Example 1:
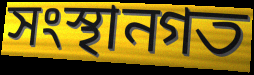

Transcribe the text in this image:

সংস্থানগত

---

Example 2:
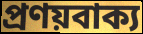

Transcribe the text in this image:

প্রণয়বাক্য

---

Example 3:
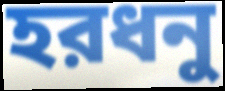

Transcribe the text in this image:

হরধনু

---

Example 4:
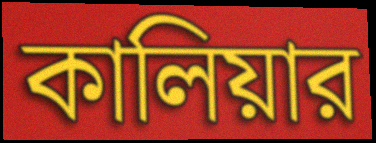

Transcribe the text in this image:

কালিয়ার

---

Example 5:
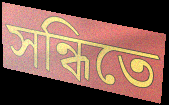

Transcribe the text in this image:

সন্ধিতে